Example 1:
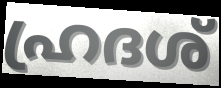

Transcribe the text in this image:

ഹ്രദശ്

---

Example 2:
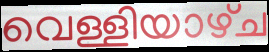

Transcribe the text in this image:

വെള്ളിയാഴ്‌ച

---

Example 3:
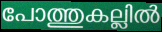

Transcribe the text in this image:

പോത്തുകല്ലിൽ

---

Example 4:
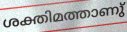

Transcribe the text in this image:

ശക്തിമത്താണു്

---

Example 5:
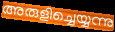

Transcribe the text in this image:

അരുളിച്ചെയ്യന്നു